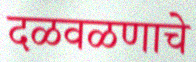
दळवळणाचे